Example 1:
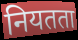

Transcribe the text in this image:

नियतता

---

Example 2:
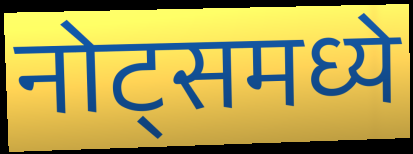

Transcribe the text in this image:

नोट्समध्ये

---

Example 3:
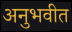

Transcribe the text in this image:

अनुभवीत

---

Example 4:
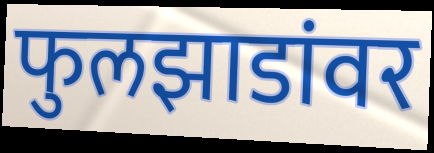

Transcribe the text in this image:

फुलझाडांवर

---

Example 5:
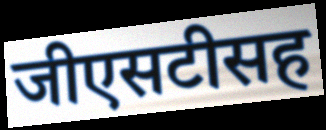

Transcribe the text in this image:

जीएसटीसह